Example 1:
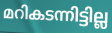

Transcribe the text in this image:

മറികടന്നിട്ടില്ല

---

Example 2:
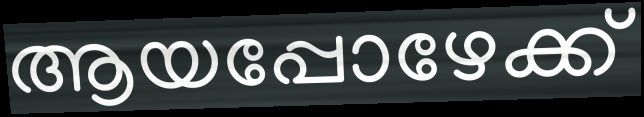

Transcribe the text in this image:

ആയപ്പോഴേക്ക്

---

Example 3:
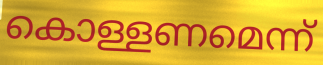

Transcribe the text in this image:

കൊള്ളണമെന്ന്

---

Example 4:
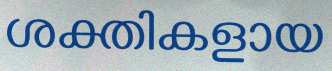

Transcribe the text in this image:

ശക്തികളായ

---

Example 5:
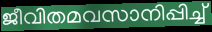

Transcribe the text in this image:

ജീവിതമവസാനിപ്പിച്ച്